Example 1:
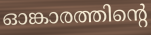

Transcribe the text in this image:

ഓങ്കാരത്തിന്റെ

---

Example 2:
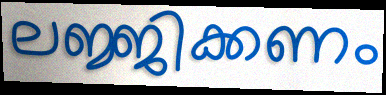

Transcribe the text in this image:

ലജ്ജിക്കണം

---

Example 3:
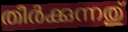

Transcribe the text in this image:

തീർക്കുന്നതു്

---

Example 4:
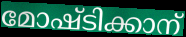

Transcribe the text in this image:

മോഷ്ടിക്കാന്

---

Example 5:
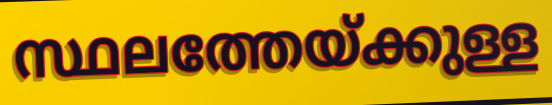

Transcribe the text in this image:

സ്ഥലത്തേയ്ക്കുള്ള